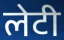
लेटी